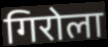
गिरोला